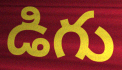
డిగు